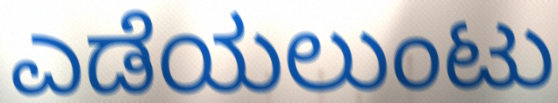
ಎಡೆಯಲುಂಟು